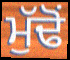
ਮੁੱਢੋਂ